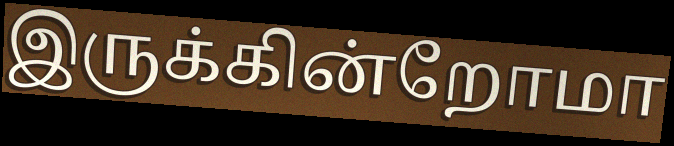
இருக்கின்றோமா